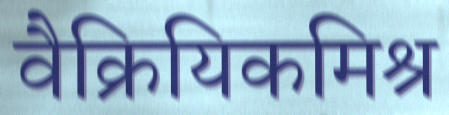
वैक्रियिकमिश्र